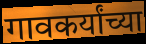
गावकर्यांच्या